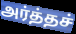
அர்த்தச்